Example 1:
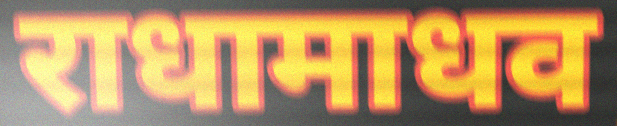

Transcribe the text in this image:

राधामाधव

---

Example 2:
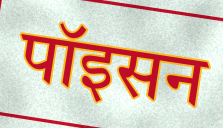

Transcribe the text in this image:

पॉइसन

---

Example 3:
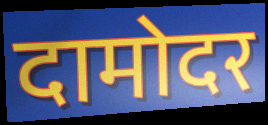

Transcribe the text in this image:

दामोदर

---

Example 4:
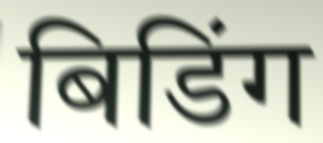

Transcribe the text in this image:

बिडिंग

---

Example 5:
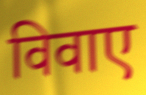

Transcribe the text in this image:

विवाए